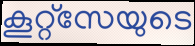
കൂറ്റ്സേയുടെ